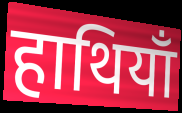
हाथियाँ